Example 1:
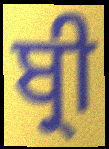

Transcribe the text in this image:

ਬ੍ਰੀ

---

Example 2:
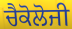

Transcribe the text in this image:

ਚੈਕੋਲੋਜੀ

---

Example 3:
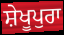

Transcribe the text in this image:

ਸ਼ੇਖੂਪੁਰਾ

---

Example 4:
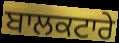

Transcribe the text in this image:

ਬਾਲਕਟਾਰੇ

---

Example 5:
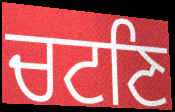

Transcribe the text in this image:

ਚਟਣਿ